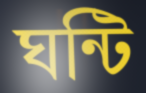
ঘন্টি